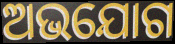
ଅଭଯୋଗ